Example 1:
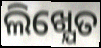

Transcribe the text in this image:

ଲିଖ୍ଯେତ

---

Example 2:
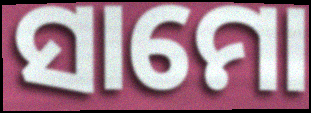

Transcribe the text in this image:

ସାମୋ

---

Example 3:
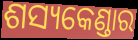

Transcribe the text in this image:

ଶସ୍ୟକେଣ୍ଡାର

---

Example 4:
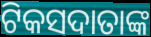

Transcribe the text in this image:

ଟିକସଦାତାଙ୍କ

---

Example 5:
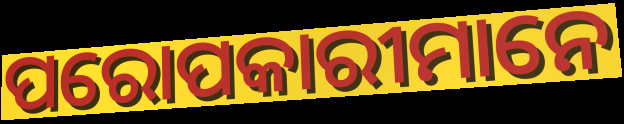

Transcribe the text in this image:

ପରୋପକାରୀମାନେ